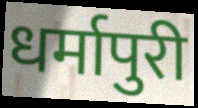
धर्मापुरी